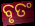
ବୃତଂ